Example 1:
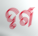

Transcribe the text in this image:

ଦୃର୍ଗ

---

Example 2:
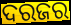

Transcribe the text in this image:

ଦରଜର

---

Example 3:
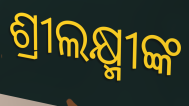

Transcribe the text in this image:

ଶ୍ରୀଲକ୍ଷ୍ମୀଙ୍କ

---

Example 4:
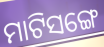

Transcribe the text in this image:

ମାଟିସଙ୍ଗେ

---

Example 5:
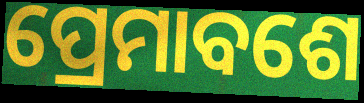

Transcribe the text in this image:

ପ୍ରେମାବଶେ